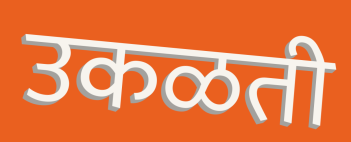
उकळती